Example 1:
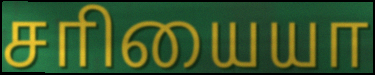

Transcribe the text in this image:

சரியையா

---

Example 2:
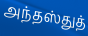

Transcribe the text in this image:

அந்தஸ்துத்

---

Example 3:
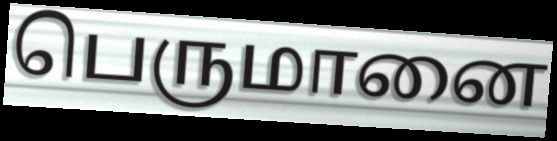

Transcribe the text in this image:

பெருமானை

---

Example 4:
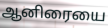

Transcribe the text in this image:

ஆனிரையை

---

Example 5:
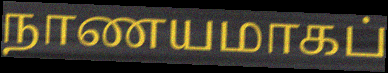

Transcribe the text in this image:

நாணயமாகப்